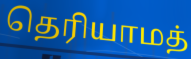
தெரியாமத்